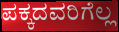
ಪಕ್ಕದವರಿಗೆಲ್ಲ